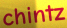
chintz